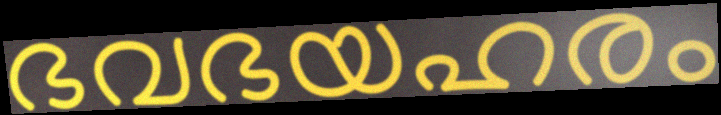
ഭവഭയഹരം